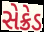
સેક્રેડ